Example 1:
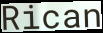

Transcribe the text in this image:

Rican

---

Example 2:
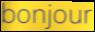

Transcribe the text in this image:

bonjour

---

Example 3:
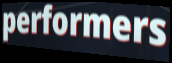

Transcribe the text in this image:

performers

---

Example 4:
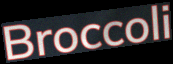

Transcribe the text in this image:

Broccoli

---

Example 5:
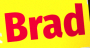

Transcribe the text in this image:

Brad